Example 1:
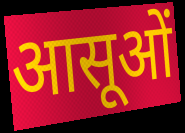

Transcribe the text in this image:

आसूओं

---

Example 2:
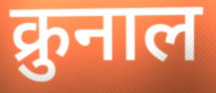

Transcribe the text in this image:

क्रुनाल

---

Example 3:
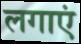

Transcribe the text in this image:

लगाएं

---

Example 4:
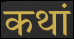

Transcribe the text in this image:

कथां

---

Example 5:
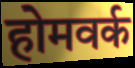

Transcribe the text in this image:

होमवर्क